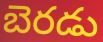
బెరడు